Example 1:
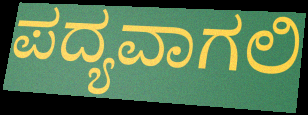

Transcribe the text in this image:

ಪದ್ಯವಾಗಲಿ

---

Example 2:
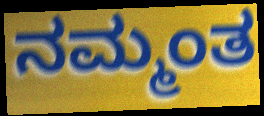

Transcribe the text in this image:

ನಮ್ಮಂತ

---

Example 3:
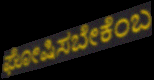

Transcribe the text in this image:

ಘೋಷಿಸಬೇಕೆಂಬ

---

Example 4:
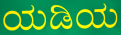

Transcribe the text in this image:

ಯಡಿಯ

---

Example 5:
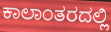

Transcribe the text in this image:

ಕಾಲಾಂತರದಲ್ಲಿ